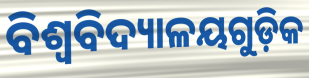
ବିଶ୍ଵବିଦ୍ୟାଳୟଗୁଡ଼ିକ